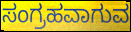
ಸಂಗ್ರಹವಾಗುವ